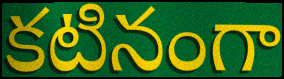
కటినంగా